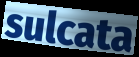
sulcata